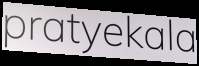
pratyekala